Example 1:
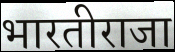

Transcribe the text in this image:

भारतीराजा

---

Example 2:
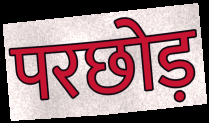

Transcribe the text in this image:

परछोड़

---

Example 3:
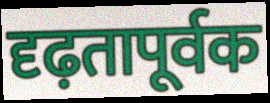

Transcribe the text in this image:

दृढ़तापूर्वक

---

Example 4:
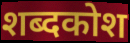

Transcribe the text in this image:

शब्दकोश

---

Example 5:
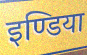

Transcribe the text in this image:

इण्डिया